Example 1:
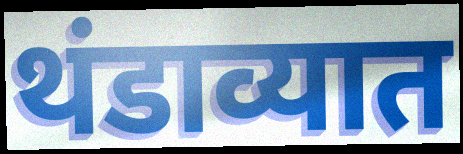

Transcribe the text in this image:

थंडाव्यात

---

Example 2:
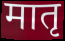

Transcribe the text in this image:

मातृ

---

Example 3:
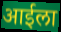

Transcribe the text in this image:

आईला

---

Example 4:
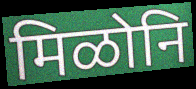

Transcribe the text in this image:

मिळोनि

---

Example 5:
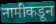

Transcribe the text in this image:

नामीकडून